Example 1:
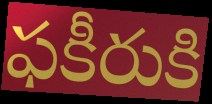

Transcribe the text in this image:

ఫకీరుకి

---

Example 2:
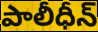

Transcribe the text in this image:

పాలీధీన్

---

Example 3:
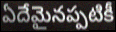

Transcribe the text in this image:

ఏదేమైనప్పటికీ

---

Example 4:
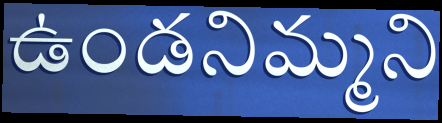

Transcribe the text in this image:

ఉండనిమ్మని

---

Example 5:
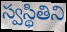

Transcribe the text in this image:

స్వస్థితిని